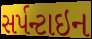
સર્પન્ટાઇન